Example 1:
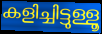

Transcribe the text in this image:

കളിച്ചിട്ടുള്ളൂ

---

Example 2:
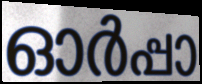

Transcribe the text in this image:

ഓർപ്പാ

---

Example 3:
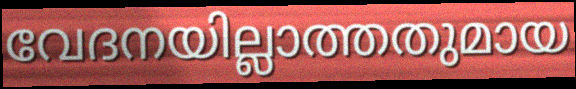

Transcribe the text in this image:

വേദനയില്ലാത്തതുമായ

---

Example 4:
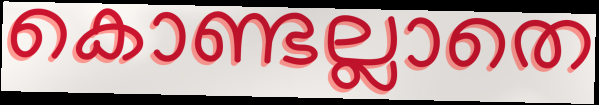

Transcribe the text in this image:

കൊണ്ടല്ലാതെ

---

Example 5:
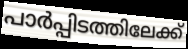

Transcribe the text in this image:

പാർപ്പിടത്തിലേക്ക്